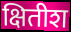
क्षितीश